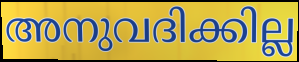
അനുവദിക്കില്ല